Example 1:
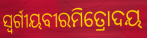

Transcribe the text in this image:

ସ୍ୱର୍ଗୀୟବୀରମିତ୍ରୋଦୟ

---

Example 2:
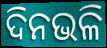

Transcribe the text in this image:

ଦିନଭଳି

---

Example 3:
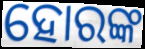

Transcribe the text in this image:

ହୋରଙ୍କ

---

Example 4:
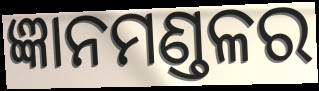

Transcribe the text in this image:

ଜ୍ଞାନମଣ୍ଡଳର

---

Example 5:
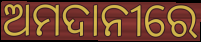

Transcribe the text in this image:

ଅମଦାନୀରେ